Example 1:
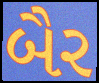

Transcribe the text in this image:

બૈર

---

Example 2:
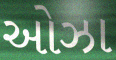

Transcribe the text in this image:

ઓઝા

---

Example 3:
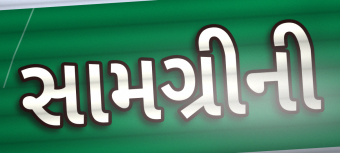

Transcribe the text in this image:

સામગ્રીની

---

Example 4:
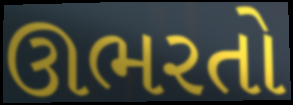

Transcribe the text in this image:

ઊભરતો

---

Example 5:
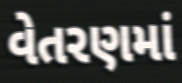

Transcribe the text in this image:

વેતરણમાં